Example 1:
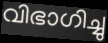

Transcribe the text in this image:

വിഭാഗിച്ചു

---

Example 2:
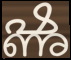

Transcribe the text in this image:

ഷ്ണു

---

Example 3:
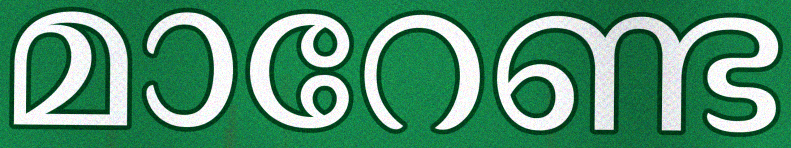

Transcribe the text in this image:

മാറേണ്ട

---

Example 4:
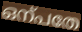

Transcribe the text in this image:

ഒന്പതേ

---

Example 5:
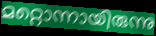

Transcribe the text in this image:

മറ്റൊന്നായിരുന്നു